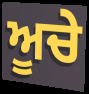
ਅੂਚੇ